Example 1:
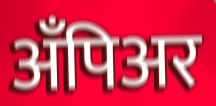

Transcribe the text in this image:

अँपिअर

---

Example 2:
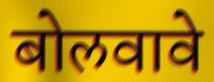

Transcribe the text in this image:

बोलवावे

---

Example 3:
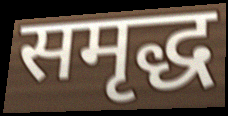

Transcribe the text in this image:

समृद्ध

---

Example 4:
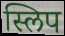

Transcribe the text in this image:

स्लिप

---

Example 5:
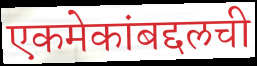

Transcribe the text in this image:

एकमेकांबद्दलची